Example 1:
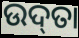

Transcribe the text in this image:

ଉଦ୍‌ତା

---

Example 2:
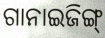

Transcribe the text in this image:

ଗାନାଇଜିଙ୍ଗ୍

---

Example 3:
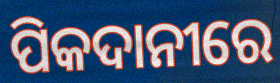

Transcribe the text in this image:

ପିକଦାନୀରେ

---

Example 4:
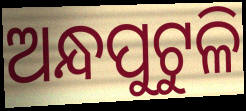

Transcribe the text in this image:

ଅନ୍ଧପୁଟୁଳି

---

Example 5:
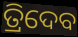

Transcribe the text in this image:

ତ୍ରିଦେବ